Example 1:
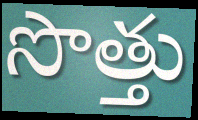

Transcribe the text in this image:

సొత్తు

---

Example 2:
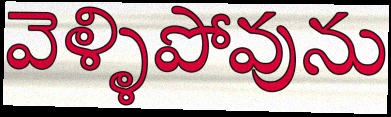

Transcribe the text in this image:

వెళ్ళిపోవును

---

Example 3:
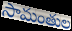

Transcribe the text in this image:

సామంతుల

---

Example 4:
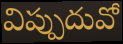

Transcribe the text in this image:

విప్పుదువో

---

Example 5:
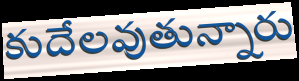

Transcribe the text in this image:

కుదేలవుతున్నారు